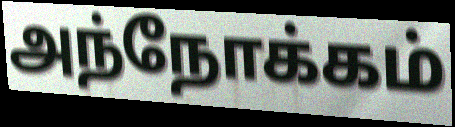
அந்நோக்கம்